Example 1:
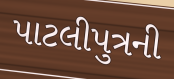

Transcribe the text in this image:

પાટલીપુત્રની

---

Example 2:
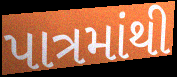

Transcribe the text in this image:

પાત્રમાંથી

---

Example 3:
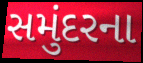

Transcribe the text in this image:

સમુંદરના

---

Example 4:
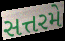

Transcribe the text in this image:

સત્તરમે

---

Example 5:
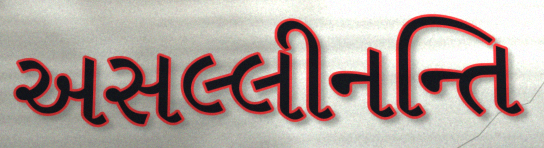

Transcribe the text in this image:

અસલ્લીનન્તિ